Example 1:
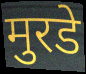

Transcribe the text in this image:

मुरडे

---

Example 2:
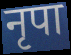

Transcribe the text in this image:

नृपा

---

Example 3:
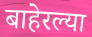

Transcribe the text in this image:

बाहेरल्या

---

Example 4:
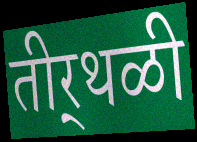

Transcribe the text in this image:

तीर्थळी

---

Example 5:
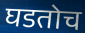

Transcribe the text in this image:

घडतोच